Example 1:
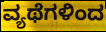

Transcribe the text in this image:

ವ್ಯಥೆಗಳಿಂದ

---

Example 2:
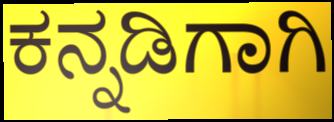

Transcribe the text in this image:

ಕನ್ನಡಿಗಾಗಿ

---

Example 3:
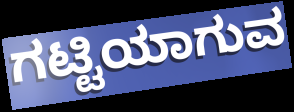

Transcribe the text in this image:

ಗಟ್ಟಿಯಾಗುವ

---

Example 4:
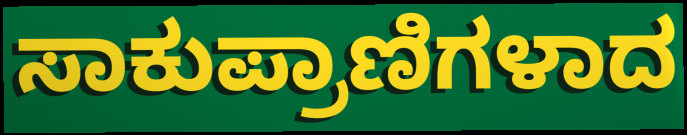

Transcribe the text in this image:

ಸಾಕುಪ್ರಾಣಿಗಳಾದ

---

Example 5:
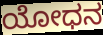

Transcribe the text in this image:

ಯೋಧನ